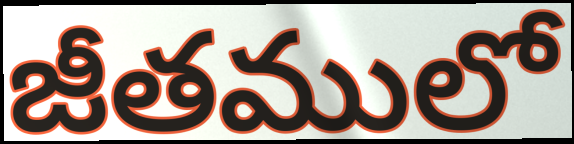
జీతములో